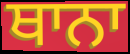
ਥਾਨਾ